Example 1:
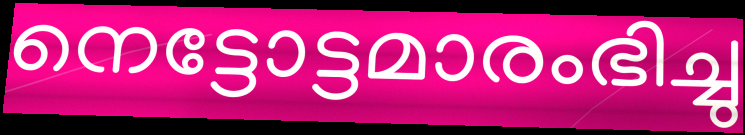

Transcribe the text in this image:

നെട്ടോട്ടമാരംഭിച്ചു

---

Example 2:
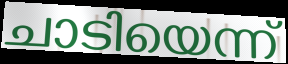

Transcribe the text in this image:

ചാടിയെന്ന്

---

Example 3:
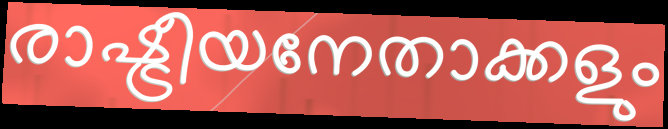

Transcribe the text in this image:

രാഷ്ട്രീയനേതാക്കളും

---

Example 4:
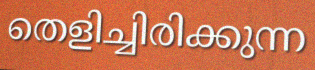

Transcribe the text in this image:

തെളിച്ചിരിക്കുന്ന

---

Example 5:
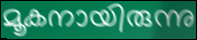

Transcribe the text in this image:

മൂകനായിരുന്നു